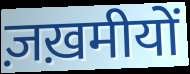
ज़ख़मीयों